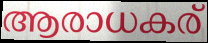
ആരാധകര്